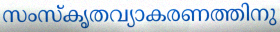
സംസ്കൃതവ്യാകരണത്തിനു